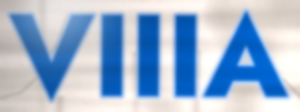
VIIIA